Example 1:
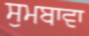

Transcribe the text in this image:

ਸੁਮਬਾਵਾ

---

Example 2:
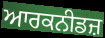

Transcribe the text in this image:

ਆਰਕਨੀਡਜ਼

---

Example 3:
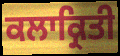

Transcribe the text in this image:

ਕਲਾਕ੍ਰਿਤੀ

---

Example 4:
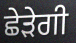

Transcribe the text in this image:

ਛੇੜੇਗੀ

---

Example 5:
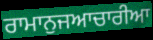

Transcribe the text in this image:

ਰਾਮਾਨੁਜਆਚਾਰੀਆ